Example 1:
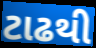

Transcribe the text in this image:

ટાઢથી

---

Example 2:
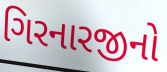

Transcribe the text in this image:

ગિરનારજીનો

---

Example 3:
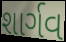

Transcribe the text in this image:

શાર્ગવ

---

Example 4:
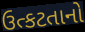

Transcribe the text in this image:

ઉત્કટતાનો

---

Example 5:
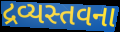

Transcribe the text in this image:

દ્રવ્યસ્તવના